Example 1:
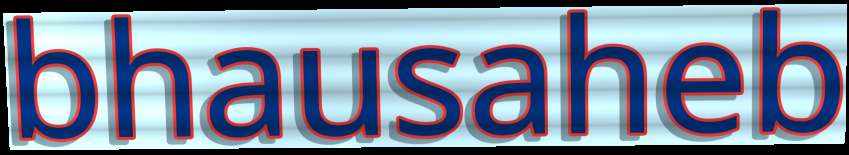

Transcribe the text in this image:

bhausaheb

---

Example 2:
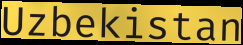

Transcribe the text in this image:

Uzbekistan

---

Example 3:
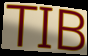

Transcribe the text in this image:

TIB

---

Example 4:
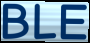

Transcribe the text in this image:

BLE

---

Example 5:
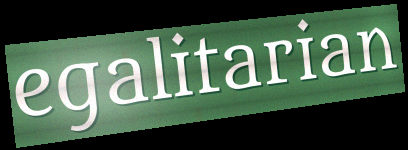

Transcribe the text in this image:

egalitarian